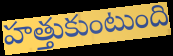
హత్తుకుంటుంది